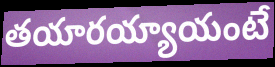
తయారయ్యాయంటే